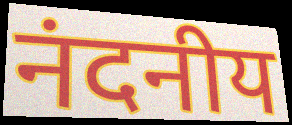
नंदनीय